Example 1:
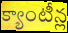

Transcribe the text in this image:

క్యాంటీన్ల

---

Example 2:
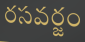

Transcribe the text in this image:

రసవర్జం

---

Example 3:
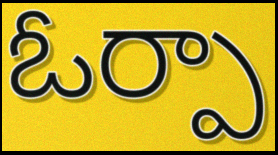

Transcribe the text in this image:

ఓర్పా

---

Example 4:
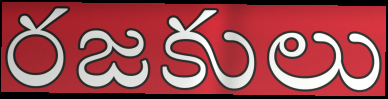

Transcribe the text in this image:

రజకులు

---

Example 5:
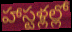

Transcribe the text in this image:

హాస్టళ్లల్లో